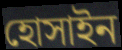
হোসাইন